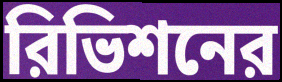
রিভিশনের